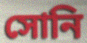
সোনি